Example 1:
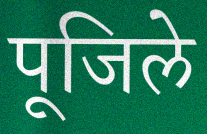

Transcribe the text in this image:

पूजिले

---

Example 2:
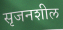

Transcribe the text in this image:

सृजनशील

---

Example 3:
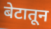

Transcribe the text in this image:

बेटातून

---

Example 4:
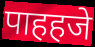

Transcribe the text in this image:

पाहहजे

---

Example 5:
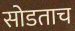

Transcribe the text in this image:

सोडताच